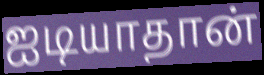
ஐடியாதான்